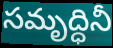
సమృద్ధినీ